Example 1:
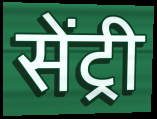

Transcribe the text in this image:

सेंट्री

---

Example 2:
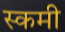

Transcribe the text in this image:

स्कमी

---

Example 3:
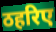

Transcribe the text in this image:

ठहरिए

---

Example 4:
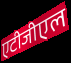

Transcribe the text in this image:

एटीजीएल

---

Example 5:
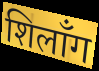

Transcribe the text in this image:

शिलाँग